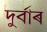
দুৰ্বাৰ